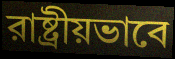
রাষ্ট্রীয়ভাবে